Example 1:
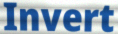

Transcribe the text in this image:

Invert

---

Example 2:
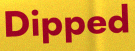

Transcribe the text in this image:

Dipped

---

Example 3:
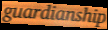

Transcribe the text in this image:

guardianship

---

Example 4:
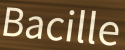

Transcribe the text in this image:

Bacille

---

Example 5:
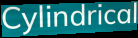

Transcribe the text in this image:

Cylindrical